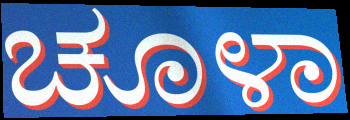
ಚೂಳಾ